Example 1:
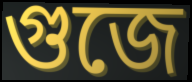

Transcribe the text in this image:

গুজে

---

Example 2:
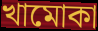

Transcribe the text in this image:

খামোকা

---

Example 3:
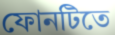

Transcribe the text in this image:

ফোনটিতে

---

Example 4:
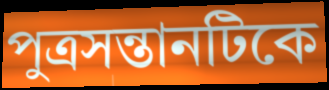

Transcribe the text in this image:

পুত্রসন্তানটিকে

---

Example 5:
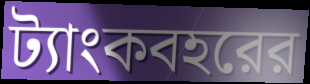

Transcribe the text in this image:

ট্যাংকবহরের